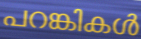
പറങ്കികൾ